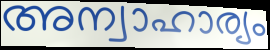
അന്വാഹാര്യം